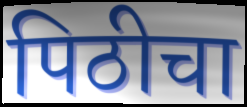
पिठीचा